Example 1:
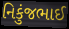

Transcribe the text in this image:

નિકુંજભાઈ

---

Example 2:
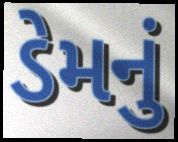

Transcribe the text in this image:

ડેમનું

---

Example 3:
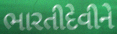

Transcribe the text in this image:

ભારતીદેવીને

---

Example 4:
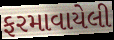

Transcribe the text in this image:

ફરમાવાયેલી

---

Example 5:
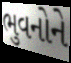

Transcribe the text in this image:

ભુવનોને